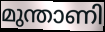
മുന്താണി